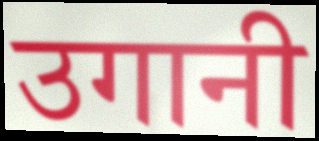
उगानी